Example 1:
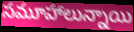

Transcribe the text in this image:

సమూహాలున్నాయి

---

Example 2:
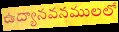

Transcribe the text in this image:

ఉద్యానవనములలో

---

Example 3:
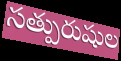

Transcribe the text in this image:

సత్పురుషుల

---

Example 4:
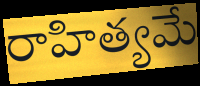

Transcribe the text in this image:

రాహిత్యమే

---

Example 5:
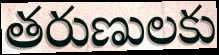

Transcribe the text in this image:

తరుణులకు